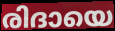
രിദായെ